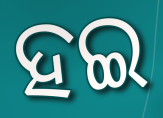
ହଇ